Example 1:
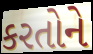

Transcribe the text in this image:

કરતોને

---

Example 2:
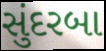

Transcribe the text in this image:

સુંદરબા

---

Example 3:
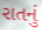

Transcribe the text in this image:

રાતનું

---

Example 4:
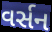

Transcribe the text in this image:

વર્સન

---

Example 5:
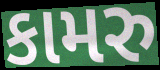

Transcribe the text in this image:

કામરુ